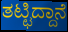
ತಟ್ಟಿದ್ದಾನೆ